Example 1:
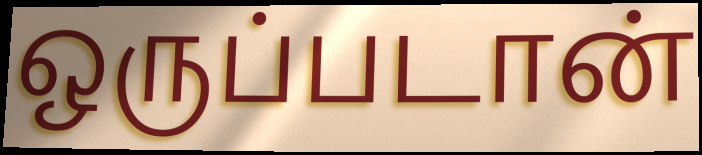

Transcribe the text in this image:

ஒருப்படான்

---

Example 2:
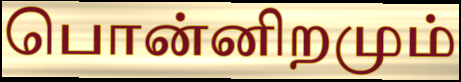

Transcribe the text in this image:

பொன்னிறமும்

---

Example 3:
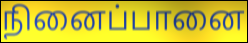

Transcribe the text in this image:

நினைப்பானை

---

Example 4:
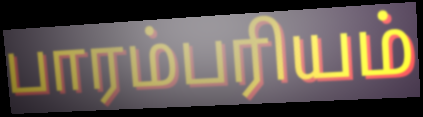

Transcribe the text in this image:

பாரம்பரியம்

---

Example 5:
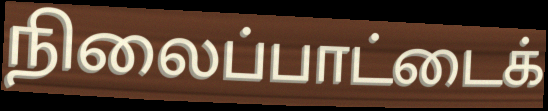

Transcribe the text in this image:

நிலைப்பாட்டைக்